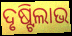
ଦୃଷ୍ଟିଲାଭ